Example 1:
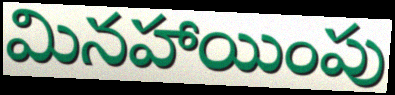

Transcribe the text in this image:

మినహాయింపు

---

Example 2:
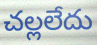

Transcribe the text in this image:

చల్లలేదు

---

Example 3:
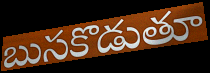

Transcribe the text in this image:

బుసకొడుతూ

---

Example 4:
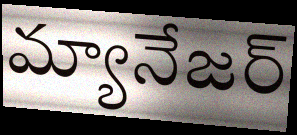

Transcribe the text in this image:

మ్యానేజర్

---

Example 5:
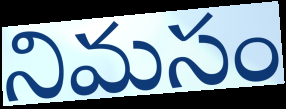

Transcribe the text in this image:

నిమసం